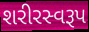
શરીરસ્વરૂપ